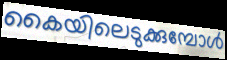
കൈയിലെടുക്കുമ്പോൾ